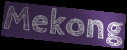
Mekong